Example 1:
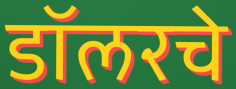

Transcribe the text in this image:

डॉलरचे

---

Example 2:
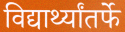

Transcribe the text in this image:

विद्यार्थ्यांतर्फे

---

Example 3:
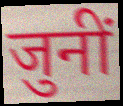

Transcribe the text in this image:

जुनीं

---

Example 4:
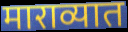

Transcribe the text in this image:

माराव्यात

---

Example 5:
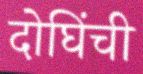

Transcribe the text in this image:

दोघिंची